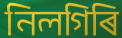
নিলগিৰি